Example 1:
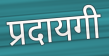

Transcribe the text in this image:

प्रदायगी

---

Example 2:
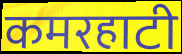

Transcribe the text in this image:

कमरहाटी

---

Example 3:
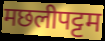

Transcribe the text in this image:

मछलीपट्टम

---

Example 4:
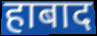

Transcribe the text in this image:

हाबाद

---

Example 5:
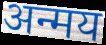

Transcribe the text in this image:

अन्मय